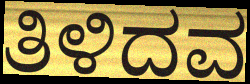
ತಿಳಿದವ